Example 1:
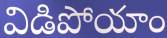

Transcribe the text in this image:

విడిపోయాం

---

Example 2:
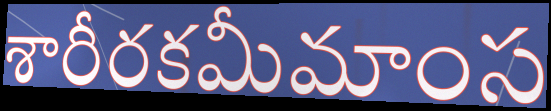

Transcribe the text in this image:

శారీరకమీమాంస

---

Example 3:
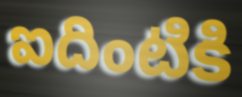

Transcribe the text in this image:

ఐదింటికి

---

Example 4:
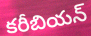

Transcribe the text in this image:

కరీబియన్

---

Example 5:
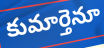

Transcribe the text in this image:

కుమార్తెనూ